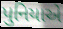
પુનિયાએ